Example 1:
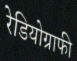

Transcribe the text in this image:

रेडियोग्राफी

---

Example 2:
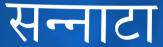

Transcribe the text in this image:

सन्‍नाटा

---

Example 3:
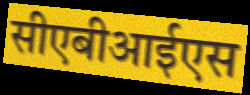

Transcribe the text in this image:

सीएबीआईएस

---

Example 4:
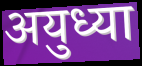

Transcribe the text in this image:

अयुध्या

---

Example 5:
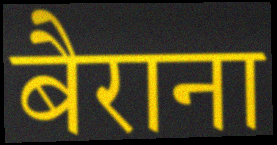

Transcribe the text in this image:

बैराना